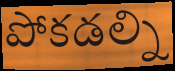
పోకడల్ని